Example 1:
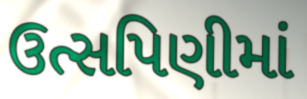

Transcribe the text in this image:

ઉત્સપિણીમાં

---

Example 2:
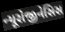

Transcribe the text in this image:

ન્યૂરોજીનેસિસ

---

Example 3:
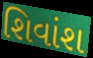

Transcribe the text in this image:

શિવાંશ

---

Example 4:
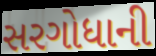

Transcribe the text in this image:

સરગોધાની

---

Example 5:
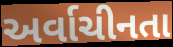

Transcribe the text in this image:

અર્વાચીનતા